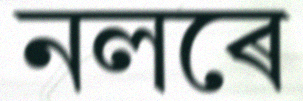
নলৰে